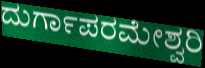
ದುರ್ಗಾಪರಮೇಶ್ವರಿ